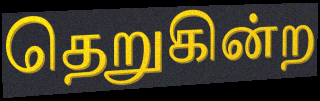
தெறுகின்ற